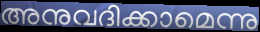
അനുവദിക്കാമെന്നു